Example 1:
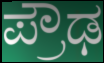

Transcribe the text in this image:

ಪ್ರೌಢ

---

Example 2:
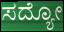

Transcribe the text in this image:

ಸದ್ಯೋ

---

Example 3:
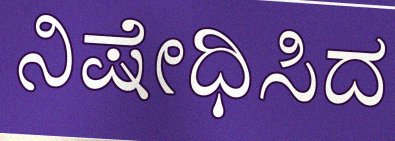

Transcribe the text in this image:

ನಿಷೇಧಿಸಿದ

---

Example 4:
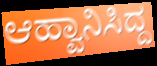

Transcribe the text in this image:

ಆಹ್ವಾನಿಸಿದ್ದ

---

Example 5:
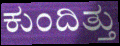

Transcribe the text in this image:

ಕುಂದಿತ್ತು